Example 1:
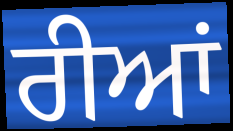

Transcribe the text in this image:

ਰੀਆਂ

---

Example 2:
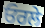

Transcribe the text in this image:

ਓਰਲੇ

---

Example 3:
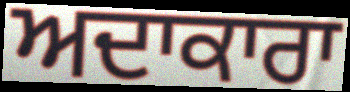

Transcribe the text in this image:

ਅਦਾਕਾਰਾ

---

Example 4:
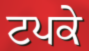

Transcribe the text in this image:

ਟਪਕੇ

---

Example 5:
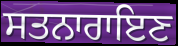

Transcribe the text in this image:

ਸਤਨਾਰਾਇਣ